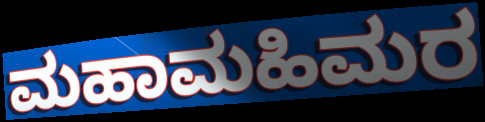
ಮಹಾಮಹಿಮರ